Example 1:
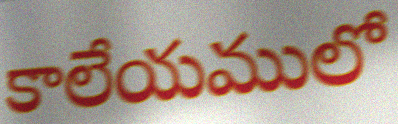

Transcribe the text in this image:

కాలేయములో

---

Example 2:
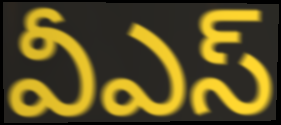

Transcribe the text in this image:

వీఎస్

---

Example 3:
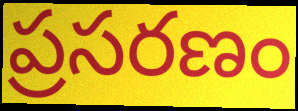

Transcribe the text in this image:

ప్రసరణం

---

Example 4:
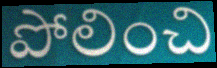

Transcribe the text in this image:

పోలించి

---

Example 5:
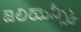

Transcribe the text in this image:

జెలియెన్స్కీ